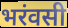
भरंवसी